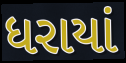
ધરાયાં